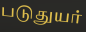
படுதுயர்